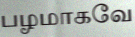
பழமாகவே